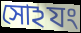
সোঽযং